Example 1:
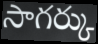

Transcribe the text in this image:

సాగర్కు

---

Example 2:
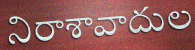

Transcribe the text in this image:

నిరాశావాదుల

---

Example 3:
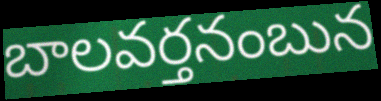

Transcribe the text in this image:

బాలవర్తనంబున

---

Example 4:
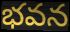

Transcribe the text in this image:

భవన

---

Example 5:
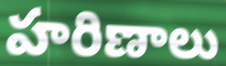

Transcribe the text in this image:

హరిణాలు